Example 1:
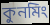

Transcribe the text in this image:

কুনমিং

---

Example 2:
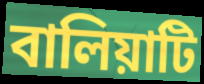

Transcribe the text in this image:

বালিয়াটি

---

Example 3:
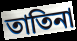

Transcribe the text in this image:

তাতিনা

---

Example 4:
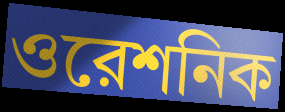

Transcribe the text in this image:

ওরেশনিক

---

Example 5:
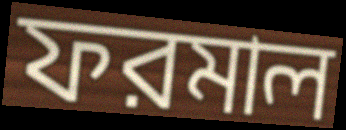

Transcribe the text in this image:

ফরমাল